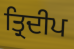
ਤ੍ਰਿਦੀਪ